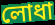
লোধা